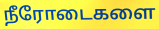
நீரோடைகளை